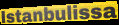
Istanbulissa